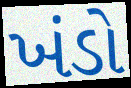
ખંડો